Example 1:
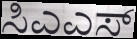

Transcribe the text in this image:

ಸಿಎಎಸ್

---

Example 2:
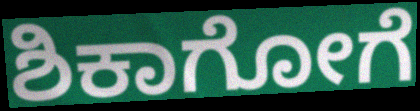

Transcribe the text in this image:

ಶಿಕಾಗೋಗೆ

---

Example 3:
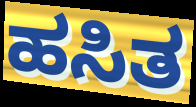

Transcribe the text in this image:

ಹಸಿತ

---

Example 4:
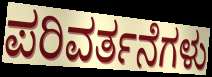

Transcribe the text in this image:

ಪರಿವರ್ತನೆಗಳು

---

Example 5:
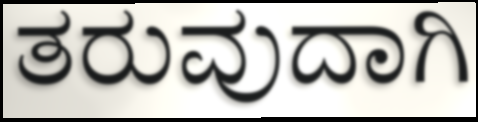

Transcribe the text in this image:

ತರುವುದಾಗಿ